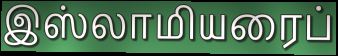
இஸ்லாமியரைப்